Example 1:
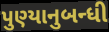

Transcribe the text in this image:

પુણ્યાનુબન્ધી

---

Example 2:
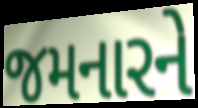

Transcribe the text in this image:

જમનારને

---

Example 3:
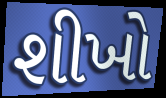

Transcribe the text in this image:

શીખો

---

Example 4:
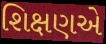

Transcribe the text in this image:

શિક્ષણએ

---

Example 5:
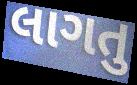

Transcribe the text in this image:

લાગતુ